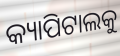
କ୍ୟାପିଟାଲକୁ